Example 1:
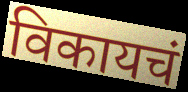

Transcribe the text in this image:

विकायचं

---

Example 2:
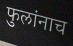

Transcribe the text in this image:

फुलांनाच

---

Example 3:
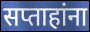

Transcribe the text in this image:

सप्ताहांना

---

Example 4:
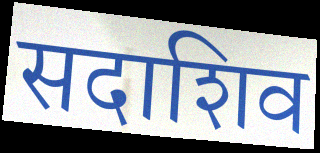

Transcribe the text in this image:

सदाशिव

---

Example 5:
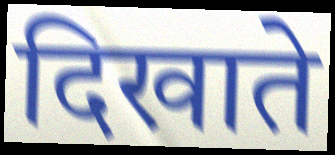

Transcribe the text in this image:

दिखाते